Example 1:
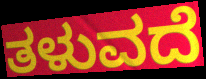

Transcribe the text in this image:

ತಳುವದೆ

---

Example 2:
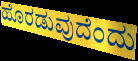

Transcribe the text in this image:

ಹೊರಡುವುದೆಂದು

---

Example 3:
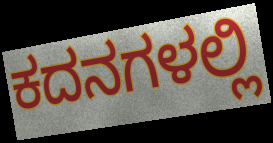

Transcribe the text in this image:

ಕದನಗಳಲ್ಲಿ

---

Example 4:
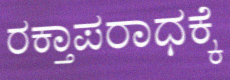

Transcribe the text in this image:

ರಕ್ತಾಪರಾಧಕ್ಕೆ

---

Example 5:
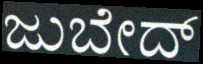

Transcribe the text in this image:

ಜುಬೇದ್